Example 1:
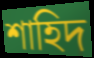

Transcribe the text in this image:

শাহিদ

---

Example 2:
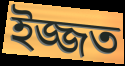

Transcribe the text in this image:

ইজ্জত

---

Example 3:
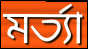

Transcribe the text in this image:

মর্ত্যা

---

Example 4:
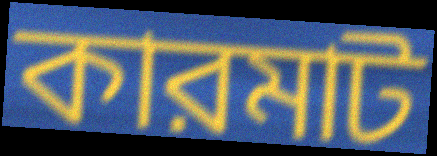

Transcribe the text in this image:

কারমাট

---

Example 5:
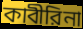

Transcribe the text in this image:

কাবীরিনা